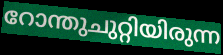
റോന്തുചുറ്റിയിരുന്ന